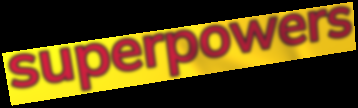
superpowers